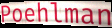
Poehlman